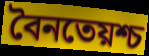
বৈনতেয়শ্চ